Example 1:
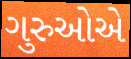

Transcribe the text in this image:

ગુરુઓએ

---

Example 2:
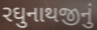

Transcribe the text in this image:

રઘુનાથજીનું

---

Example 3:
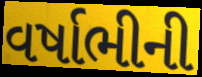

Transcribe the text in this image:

વર્ષાભીની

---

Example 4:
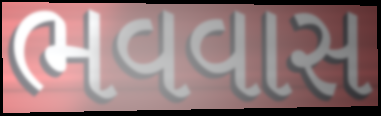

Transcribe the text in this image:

ભવવાસ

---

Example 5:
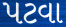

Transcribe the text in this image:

પટવા